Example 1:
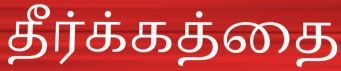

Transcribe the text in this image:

தீர்க்கத்தை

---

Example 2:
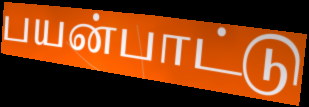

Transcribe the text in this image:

பயன்பாட்டு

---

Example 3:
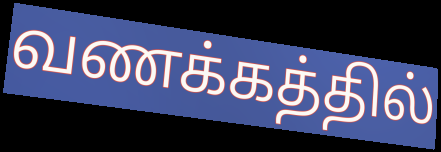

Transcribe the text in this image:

வணக்கத்தில்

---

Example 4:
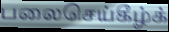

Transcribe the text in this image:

பலைசெய்கீழ்க்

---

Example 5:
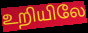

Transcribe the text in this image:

உறியிலே